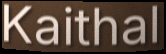
Kaithal